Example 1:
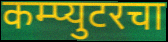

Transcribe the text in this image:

कम्प्युटरचा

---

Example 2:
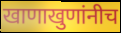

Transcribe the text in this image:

खाणाखुणांनीच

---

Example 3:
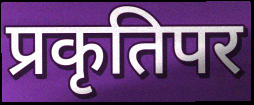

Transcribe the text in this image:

प्रकृतिपर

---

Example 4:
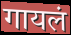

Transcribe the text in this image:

गायलं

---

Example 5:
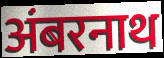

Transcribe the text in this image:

अंबरनाथ